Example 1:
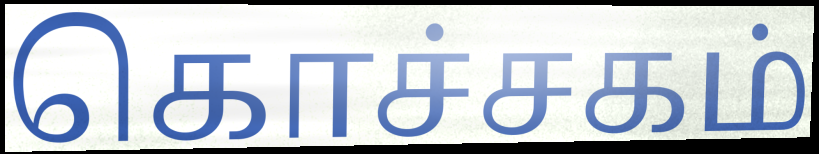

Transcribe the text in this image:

கொச்சகம்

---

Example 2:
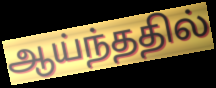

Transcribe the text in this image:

ஆய்ந்ததில்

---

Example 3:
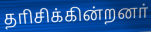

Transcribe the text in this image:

தரிசிக்கின்றனர்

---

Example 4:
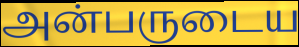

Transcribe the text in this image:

அன்பருடைய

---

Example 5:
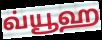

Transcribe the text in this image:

வ்யூஹ